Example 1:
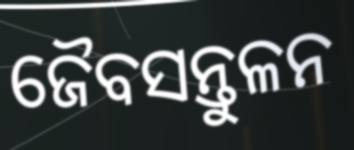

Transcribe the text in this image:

ଜୈବସନ୍ତୁଳନ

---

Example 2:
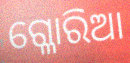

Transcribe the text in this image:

ଗ୍ଳୋରିଆ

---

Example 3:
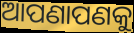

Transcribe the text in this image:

ଆପଣାପଣକୁ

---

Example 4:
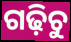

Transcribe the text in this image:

ଗଢ଼ିଚୁ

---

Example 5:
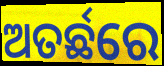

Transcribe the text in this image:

ଅତର୍ଛରେ